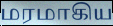
மரமாகிய